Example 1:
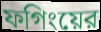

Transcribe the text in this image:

ফগিংয়ের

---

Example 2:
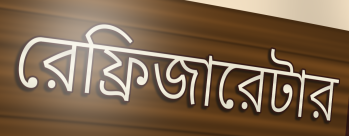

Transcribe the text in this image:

রেফ্রিজারেটার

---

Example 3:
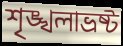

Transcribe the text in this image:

শৃঙ্খলাভ্রষ্ট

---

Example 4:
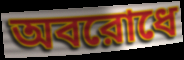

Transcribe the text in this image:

অবরোধে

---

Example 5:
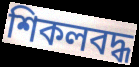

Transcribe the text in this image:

শিকলবদ্ধ